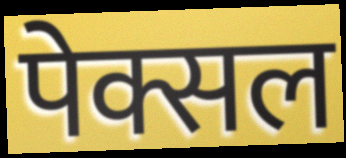
पेक्सल